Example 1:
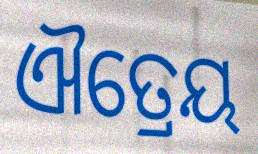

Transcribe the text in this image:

ଐତ୍ରେୟ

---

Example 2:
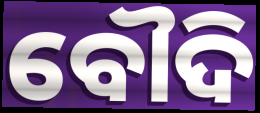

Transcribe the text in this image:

ବୌଦି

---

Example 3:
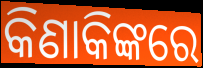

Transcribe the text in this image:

କିଣାକିଙ୍କରେ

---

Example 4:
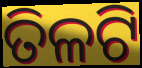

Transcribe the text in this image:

ତିଳଟି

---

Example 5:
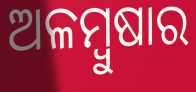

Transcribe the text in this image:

ଅଳମ୍ବୁଷାର